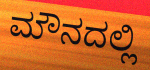
ಮೌನದಲ್ಲಿ